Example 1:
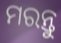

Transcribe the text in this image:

ମରନ୍ତୁ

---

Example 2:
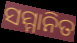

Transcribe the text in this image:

ସମ୍ମାନିତ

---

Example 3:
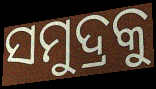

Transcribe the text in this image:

ସମୁଦ୍ରକୁ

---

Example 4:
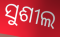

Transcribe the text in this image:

ସୁଶୀଲ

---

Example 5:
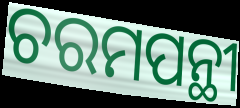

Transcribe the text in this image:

ଚରମପନ୍ଥୀ